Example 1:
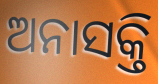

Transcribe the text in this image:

ଅନାସକ୍ତି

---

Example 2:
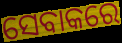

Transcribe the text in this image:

ସେବାକରେ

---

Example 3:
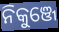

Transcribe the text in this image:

ନିକୁଞ୍ଜେ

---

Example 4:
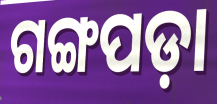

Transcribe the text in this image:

ଗଙ୍ଗପଡ଼ା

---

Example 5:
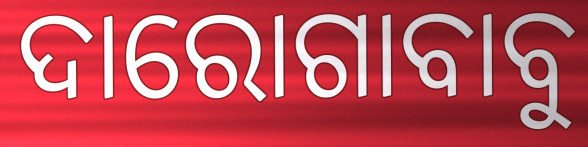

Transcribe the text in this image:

ଦାରୋଗାବାବୁ